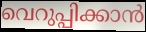
വെറുപ്പിക്കാൻ